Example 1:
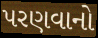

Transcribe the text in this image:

પરણવાનો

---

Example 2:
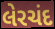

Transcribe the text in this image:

લેરચંદ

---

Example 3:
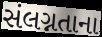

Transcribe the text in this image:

સંલગ્નતાના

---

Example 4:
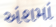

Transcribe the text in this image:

અંશમાં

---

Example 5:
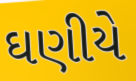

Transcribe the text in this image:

ઘણીયે